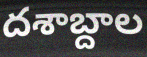
దశాబ్దాల